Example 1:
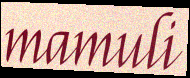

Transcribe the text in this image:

mamuli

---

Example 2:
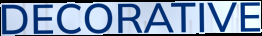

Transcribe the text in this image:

DECORATIVE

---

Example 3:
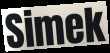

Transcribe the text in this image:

Simek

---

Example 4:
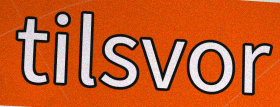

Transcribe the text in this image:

tilsvor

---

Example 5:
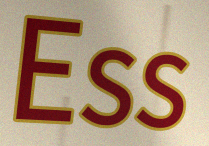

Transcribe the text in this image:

Ess